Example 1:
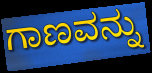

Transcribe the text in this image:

ಗಾಣವನ್ನು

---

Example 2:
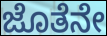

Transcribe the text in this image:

ಜೊತೆನೇ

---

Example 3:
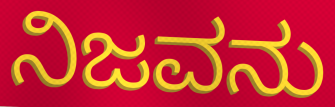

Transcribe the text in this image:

ನಿಜವನು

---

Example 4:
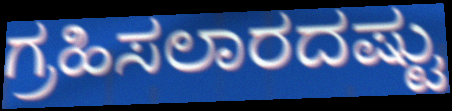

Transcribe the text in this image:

ಗ್ರಹಿಸಲಾರದಷ್ಟು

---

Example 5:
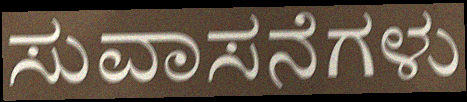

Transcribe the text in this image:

ಸುವಾಸನೆಗಳು